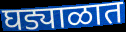
घड्याळात